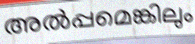
അൽപ്പമെങ്കിലും